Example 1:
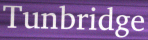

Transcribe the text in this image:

Tunbridge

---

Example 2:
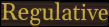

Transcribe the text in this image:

Regulative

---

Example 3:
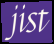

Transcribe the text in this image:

jist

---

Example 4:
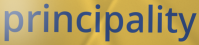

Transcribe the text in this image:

principality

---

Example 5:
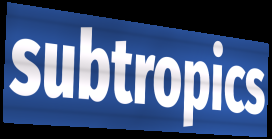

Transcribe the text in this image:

subtropics